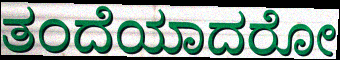
ತಂದೆಯಾದರೋ